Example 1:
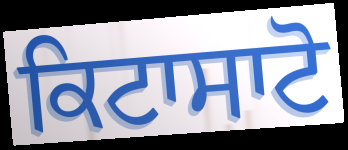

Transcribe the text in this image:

ਕਿਟਾਸਾਟੋ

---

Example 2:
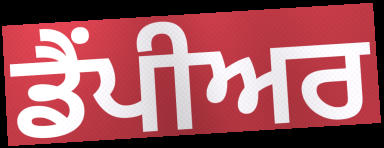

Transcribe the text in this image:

ਡੈਂਪੀਅਰ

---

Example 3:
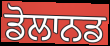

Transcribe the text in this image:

ਡੋਲਾਨਡ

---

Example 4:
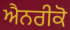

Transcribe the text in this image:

ਐਨਰੀਕੋ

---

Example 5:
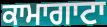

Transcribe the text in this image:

ਕਾਮਾਗਾਟਾ